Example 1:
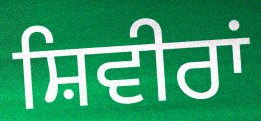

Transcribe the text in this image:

ਸ਼ਿਵੀਰਾਂ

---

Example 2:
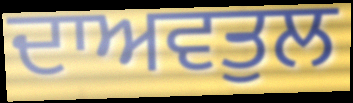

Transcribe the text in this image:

ਦਾਅਵਤੁਲ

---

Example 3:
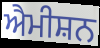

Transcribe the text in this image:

ਐਮੀਸ਼ਨ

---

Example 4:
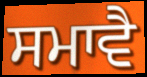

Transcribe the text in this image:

ਸਮਾਵੈ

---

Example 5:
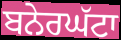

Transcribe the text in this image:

ਬਨੇਰਘੱਟਾ